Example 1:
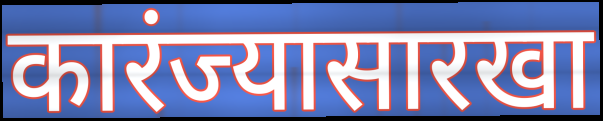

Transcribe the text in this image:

कारंज्यासारखा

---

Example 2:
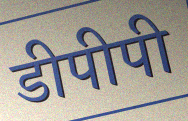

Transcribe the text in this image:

डीपीपी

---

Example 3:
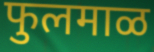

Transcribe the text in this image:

फुलमाळ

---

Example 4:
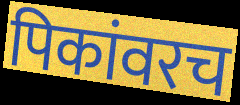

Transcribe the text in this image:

पिकांवरच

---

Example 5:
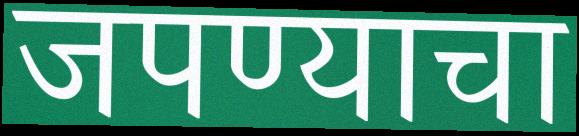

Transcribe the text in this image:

जपण्याचा